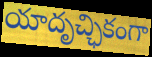
యాదృచ్ఛికంగా